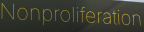
Nonproliferation